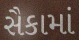
સૈકામાં